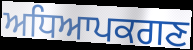
ਅਧਿਆਪਕਗਣ